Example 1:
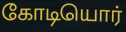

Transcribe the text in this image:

கோடியொர்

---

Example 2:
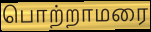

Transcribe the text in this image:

பொற்றாமரை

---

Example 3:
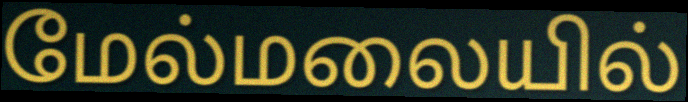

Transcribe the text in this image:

மேல்மலையில்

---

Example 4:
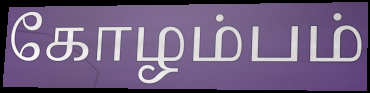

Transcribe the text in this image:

கோழம்பம்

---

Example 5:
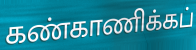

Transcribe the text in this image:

கண்காணிக்கப்